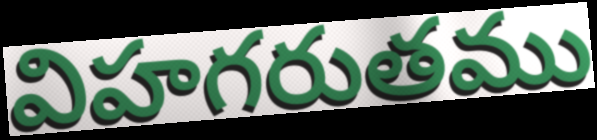
విహగరుతము